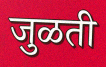
जुळती